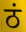
ठं